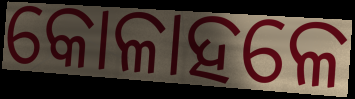
କୋଳାହଳେ